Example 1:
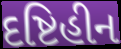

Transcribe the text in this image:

દષ્ટિહીન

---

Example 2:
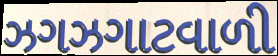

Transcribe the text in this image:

ઝગઝગાટવાળી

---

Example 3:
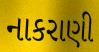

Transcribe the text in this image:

નાકરાણી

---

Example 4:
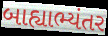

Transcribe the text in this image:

બાહ્યાભ્યંતર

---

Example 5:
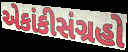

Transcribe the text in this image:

એકાંકીસંગ્રહો